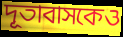
দূতাবাসকেও